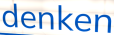
denken